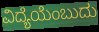
ವಿದ್ಯೆಯೆಂಬುದು